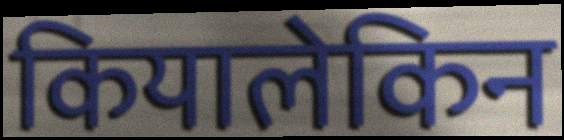
कियालेकिन